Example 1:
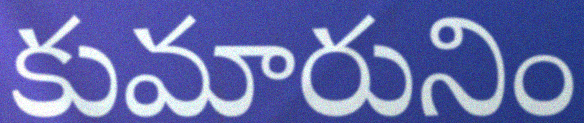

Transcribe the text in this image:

కుమారునిం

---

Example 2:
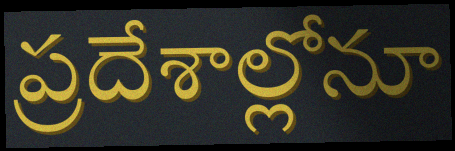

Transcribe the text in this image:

ప్రదేశాల్లోనూ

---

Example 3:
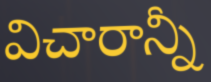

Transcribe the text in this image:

విచారాన్నీ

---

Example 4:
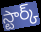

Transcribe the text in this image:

స్టార్క్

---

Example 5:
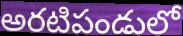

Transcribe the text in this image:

అరటిపండులో